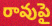
రావుపై